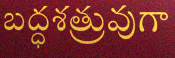
బద్ధశత్రువుగా